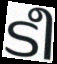
ടീ